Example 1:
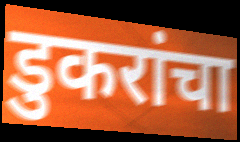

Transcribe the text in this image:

डुकरांचा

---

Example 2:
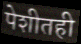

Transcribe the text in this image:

पेशीतही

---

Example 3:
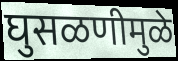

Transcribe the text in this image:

घुसळणीमुळे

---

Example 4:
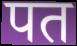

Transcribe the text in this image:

पत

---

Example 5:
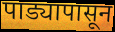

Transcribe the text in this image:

पाड्यापासून